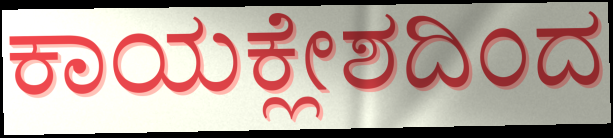
ಕಾಯಕ್ಲೇಶದಿಂದ